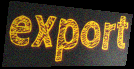
export